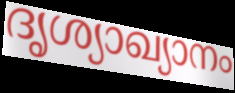
ദൃശ്യാഖ്യാനം